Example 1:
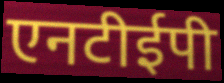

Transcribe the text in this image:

एनटीईपी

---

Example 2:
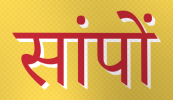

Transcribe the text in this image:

सांपों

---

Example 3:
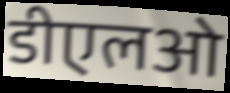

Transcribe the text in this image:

डीएलओ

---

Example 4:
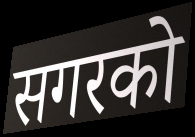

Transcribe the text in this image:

सगरको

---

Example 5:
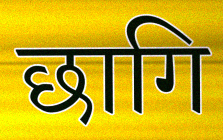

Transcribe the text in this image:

छागि